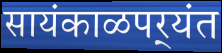
सायंकाळपर्यंत